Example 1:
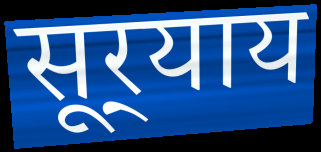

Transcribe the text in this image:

सूर्याय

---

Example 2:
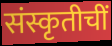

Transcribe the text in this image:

संस्कृतीचीं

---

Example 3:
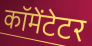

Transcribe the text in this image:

कॉमेंटेटर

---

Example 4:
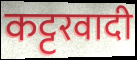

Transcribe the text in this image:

कट्टरवादी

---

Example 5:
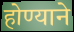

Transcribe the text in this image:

होण्याने